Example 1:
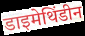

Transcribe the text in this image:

डाइमेथिंडीन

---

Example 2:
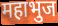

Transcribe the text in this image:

महाभुज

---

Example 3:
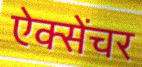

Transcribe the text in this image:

ऐक्सेंचर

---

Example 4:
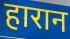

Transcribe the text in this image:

हारान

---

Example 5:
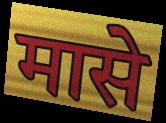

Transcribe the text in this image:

मासे